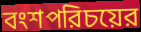
বংশপরিচয়ের